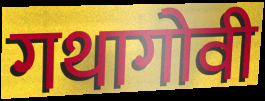
गथागोवी